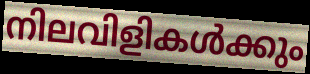
നിലവിളികൾക്കും